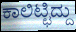
ಕಾಲಿಟ್ಟಿದ್ದು